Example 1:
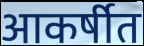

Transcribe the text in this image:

आकर्षीत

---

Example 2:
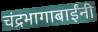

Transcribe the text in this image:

चंद्रभागाबाईंनी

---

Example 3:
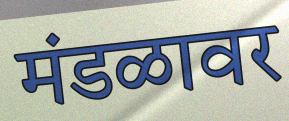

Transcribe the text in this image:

मंडळावर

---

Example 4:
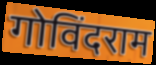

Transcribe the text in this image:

गोविंदराम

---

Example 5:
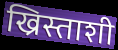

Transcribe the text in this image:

ख्रिस्ताशी